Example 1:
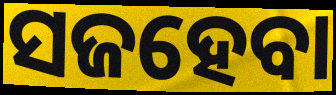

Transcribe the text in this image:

ସଜହେବା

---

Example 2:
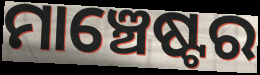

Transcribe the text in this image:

ମାଞ୍ଚେଷ୍ଟର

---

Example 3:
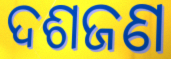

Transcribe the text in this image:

ଦଶଜଣ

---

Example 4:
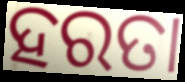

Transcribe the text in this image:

ହରତା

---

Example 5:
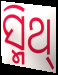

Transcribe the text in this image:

ସ୍ମିଥ୍